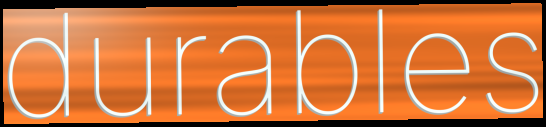
durables